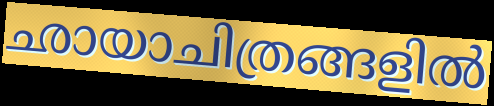
ഛായാചിത്രങ്ങളിൽ